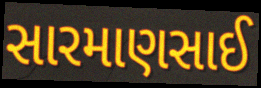
સારમાણસાઈ